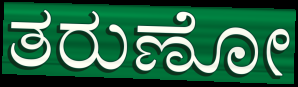
ತರುಣೋ